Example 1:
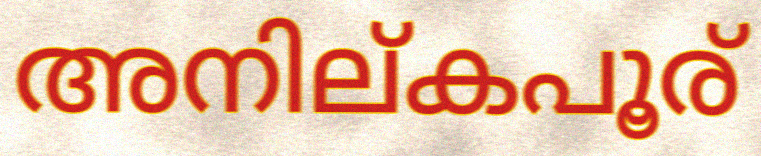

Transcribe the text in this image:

അനില്കപൂര്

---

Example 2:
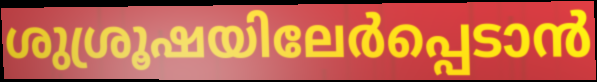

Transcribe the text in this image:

ശുശ്രൂഷയിലേർപ്പെടാൻ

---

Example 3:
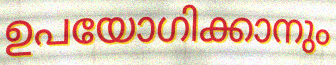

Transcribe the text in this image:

ഉപയോഗിക്കാനും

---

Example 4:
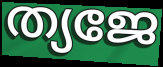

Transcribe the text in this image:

ത്യജേ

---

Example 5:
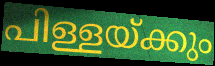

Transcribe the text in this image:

പിള്ളയ്ക്കും